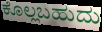
ಕೊಲ್ಲಬಹುದು